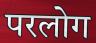
परलोग